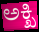
ಅಕ್ಖಿ